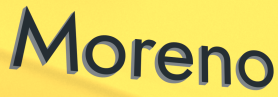
Moreno